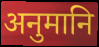
अनुमानि